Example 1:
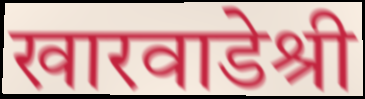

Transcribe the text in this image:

खारवाडेश्री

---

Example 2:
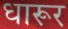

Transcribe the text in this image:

धारूर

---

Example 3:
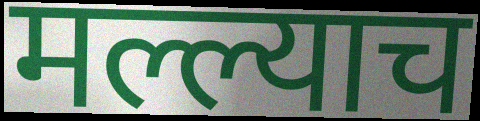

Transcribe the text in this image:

मल्ल्याच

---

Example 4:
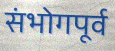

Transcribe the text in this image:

संभोगपूर्व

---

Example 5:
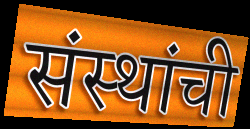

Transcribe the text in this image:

संस्थांची